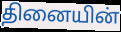
தினையின்